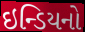
ઇન્ડિયનો